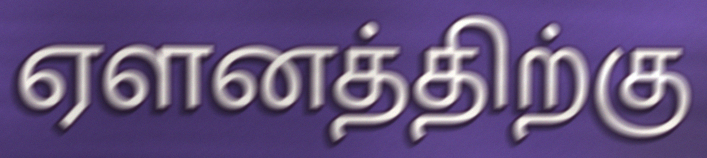
ஏளனத்திற்கு